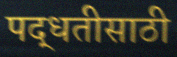
पद्धतीसाठी